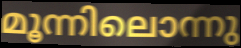
മൂന്നിലൊന്നു